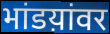
भांडय़ांवर